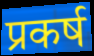
प्रकर्ष